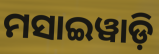
ମସାଇୱାଡ଼ି